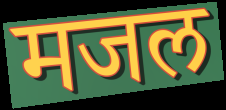
मजल